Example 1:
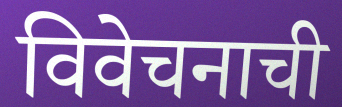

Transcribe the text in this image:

विवेचनाची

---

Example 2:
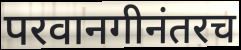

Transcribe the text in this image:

परवानगीनंतरच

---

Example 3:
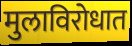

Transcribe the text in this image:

मुलाविरोधात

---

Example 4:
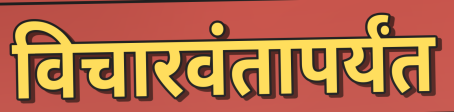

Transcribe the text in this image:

विचारवंतापर्यंत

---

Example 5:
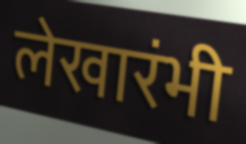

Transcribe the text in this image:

लेखारंभी